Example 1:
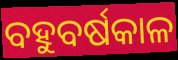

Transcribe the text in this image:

ବହୁବର୍ଷକାଳ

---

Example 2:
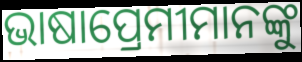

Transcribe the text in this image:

ଭାଷାପ୍ରେମୀମାନଙ୍କୁ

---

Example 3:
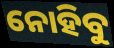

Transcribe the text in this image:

ନୋହିବୁ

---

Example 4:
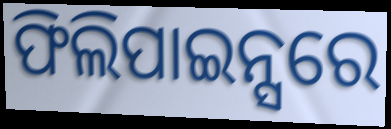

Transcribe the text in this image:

ଫିଲିପାଇନ୍ସରେ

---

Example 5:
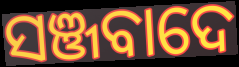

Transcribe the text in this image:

ସଞ୍ଜବାଦେ